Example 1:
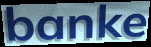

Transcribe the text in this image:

banke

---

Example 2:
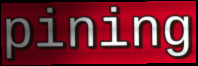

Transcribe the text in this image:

pining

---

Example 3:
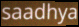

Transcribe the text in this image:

saadhya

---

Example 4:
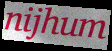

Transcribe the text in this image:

nijhum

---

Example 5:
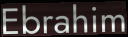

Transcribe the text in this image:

Ebrahim